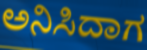
ಅನಿಸಿದಾಗ